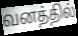
வனத்தில்